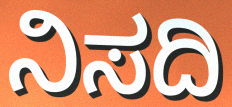
ನಿಸದಿ